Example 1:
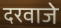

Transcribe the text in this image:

दरवाजे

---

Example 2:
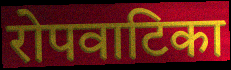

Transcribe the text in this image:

रोपवाटिका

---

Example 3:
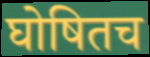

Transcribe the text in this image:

घोषितच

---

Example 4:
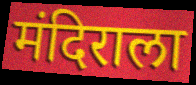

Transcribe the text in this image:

मंदिराला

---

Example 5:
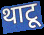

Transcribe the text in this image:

थाटू